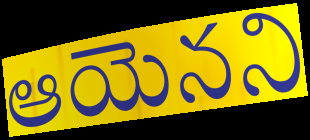
ఆయెనని